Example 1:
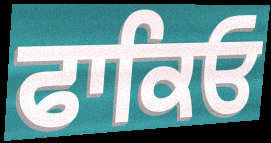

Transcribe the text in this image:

ਫਾਕਿਓ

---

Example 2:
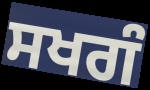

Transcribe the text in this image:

ਸਖਗੰ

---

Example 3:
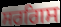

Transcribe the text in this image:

ਸਰਗਿਸ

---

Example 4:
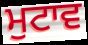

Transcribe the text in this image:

ਮੁਟਾਵ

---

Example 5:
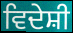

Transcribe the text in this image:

ਵਿਦੇਸ਼ੀ